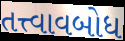
તત્ત્વાવબોધ